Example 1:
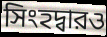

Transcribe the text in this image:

সিংহদ্বারও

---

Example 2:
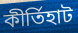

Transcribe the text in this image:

কীর্তিহাট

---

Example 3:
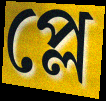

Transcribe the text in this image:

প্লে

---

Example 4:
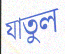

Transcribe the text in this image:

যাতুল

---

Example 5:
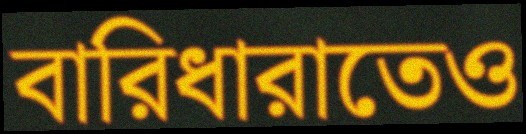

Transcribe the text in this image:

বারিধারাতেও